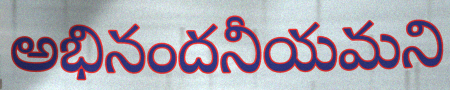
అభినందనీయమని